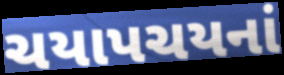
ચયાપચયનાં